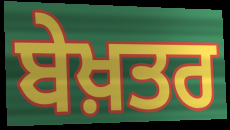
ਬੇਖ਼ਤਰ